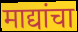
माद्यांचा